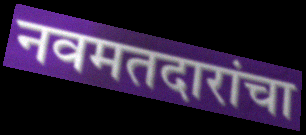
नवमतदारांचा